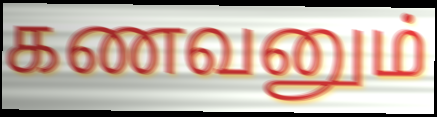
கணவனும்